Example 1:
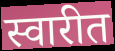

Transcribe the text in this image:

स्वारीत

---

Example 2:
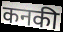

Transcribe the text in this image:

कनकी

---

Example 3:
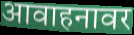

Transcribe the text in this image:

आवाहनावर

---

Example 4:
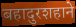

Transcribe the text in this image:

बहादुरशहाने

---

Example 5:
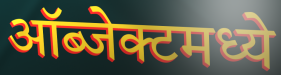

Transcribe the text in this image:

ऑब्जेक्टमध्ये